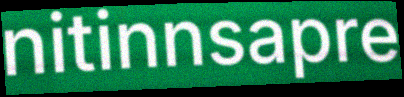
nitinnsapre